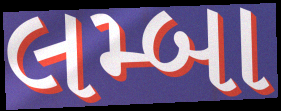
લમ્બા